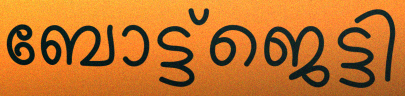
ബോട്ട്ജെട്ടി